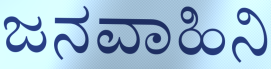
ಜನವಾಹಿನಿ